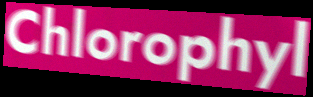
Chlorophyl